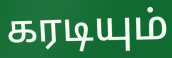
கரடியும்